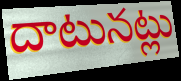
దాటునట్లు